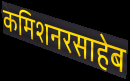
कमिशनरसाहेब